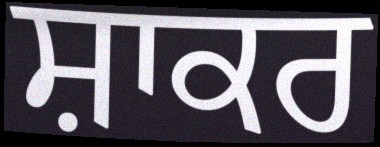
ਸ਼ਾਕਰ